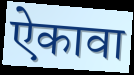
ऐकावा